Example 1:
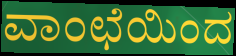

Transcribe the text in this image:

ವಾಂಛೆಯಿಂದ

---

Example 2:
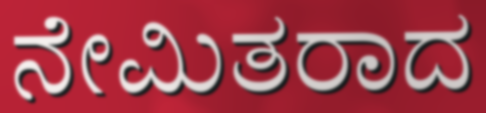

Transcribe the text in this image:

ನೇಮಿತರಾದ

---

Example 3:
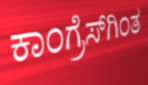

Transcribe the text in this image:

ಕಾಂಗ್ರೆಸ್‌ಗಿಂತ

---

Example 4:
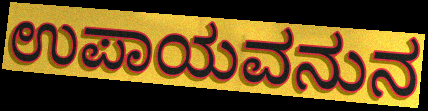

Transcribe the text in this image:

ಉಪಾಯವನುನ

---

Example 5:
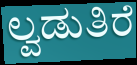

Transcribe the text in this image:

ಲ್ವಡುತಿರೆ